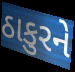
ઠાકુરને